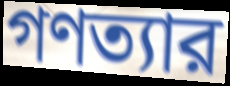
গণত্যার